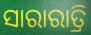
ସାରାରାତ୍ରି